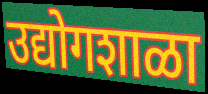
उद्योगशाळा